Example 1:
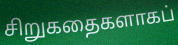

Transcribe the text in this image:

சிறுகதைகளாகப்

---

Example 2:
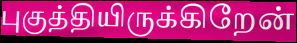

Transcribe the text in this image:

புகுத்தியிருக்கிறேன்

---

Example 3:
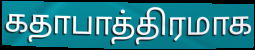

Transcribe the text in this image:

கதாபாத்திரமாக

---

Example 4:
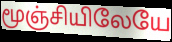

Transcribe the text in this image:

மூஞ்சியிலேயே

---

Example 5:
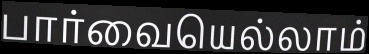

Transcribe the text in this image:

பார்வையெல்லாம்